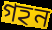
গহন